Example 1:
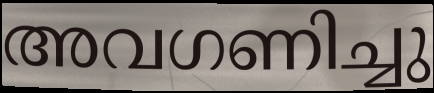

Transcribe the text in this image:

അവഗണിച്ചു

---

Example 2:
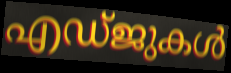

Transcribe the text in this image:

എഡ്ജുകൾ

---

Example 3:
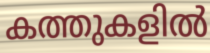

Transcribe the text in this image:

കത്തുകളിൽ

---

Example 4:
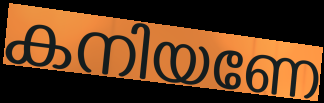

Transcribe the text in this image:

കനിയണേ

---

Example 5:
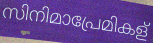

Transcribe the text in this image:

സിനിമാപ്രേമികള്